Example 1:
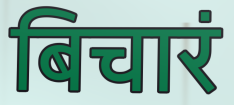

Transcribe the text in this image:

बिचारं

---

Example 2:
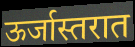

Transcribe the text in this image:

ऊर्जास्तरात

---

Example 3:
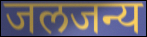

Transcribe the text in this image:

जलजन्य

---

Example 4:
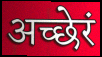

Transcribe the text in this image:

अच्छेरं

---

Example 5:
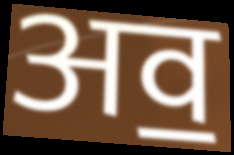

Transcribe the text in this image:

अव॒